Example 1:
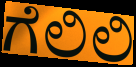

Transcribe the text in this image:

ಗೆಲಿಲಿ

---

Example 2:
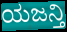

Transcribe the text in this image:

ಯಜನ್ತಿ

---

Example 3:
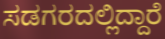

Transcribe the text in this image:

ಸಡಗರದಲ್ಲಿದ್ದಾರೆ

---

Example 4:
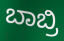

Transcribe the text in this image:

ಬಾಬ್ರಿ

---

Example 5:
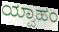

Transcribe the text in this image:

ಯ್ವಾಹಂ